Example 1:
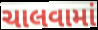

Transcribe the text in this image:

ચાલવામાં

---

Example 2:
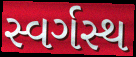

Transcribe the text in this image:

સ્વર્ગસ્થ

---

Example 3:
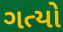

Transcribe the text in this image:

ગત્યો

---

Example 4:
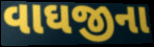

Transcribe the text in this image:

વાઘજીના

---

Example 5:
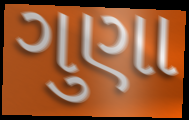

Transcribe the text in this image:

ગુણા